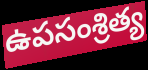
ఉపసంశ్రిత్య